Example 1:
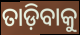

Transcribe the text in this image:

ତାଡ଼ିବାକୁ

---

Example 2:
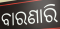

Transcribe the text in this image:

ବାରଣାରି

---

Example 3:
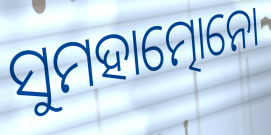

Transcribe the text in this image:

ସୁମହାତ୍ମୋନୋ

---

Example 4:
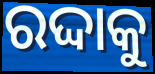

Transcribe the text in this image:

ରଦ୍ଦାକୁ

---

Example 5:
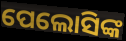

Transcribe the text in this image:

ପେଲୋସିଙ୍କ